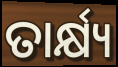
ତାର୍କ୍ଷ୍ୟ